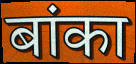
बांका